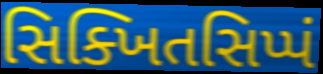
સિક્ખિતસિપ્પં